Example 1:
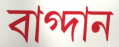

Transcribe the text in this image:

বাগ্দান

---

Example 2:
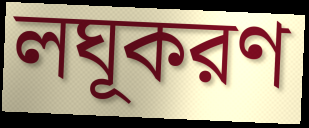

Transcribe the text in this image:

লঘূকরণ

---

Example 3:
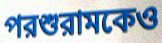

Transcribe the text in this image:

পরশুরামকেও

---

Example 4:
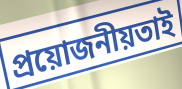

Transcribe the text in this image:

প্রয়োজনীয়তাই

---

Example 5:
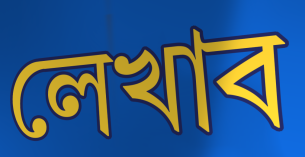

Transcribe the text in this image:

লেখাব